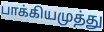
பாக்கியமுத்து